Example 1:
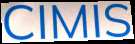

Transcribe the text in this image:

CIMIS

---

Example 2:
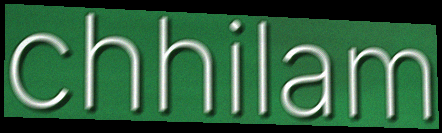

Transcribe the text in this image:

chhilam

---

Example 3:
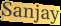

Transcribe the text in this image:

Sanjay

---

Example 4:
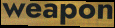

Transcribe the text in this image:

weapon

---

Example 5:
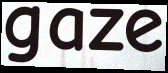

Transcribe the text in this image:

gaze